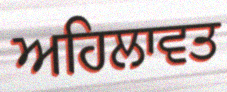
ਅਹਿਲਾਵਤ